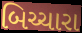
બિચ્ચારા